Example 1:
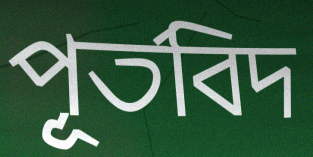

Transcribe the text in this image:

পূর্তবিদ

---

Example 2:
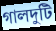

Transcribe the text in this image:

গালদুটি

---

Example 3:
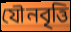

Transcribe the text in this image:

যৌনবৃত্তি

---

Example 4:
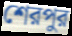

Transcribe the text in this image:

শেরপুর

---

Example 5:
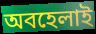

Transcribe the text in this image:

অবহেলাই